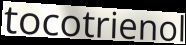
tocotrienol